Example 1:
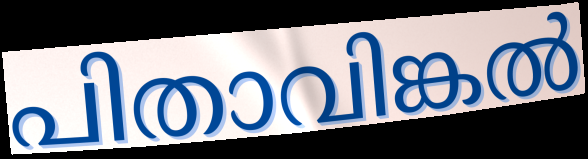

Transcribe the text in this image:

പിതാവിങ്കൽ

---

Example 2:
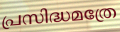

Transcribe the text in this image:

പ്രസിദ്ധമത്രേ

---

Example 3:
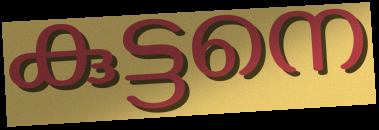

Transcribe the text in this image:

കുട്ടനെ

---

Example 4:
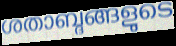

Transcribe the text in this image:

ശതാബ്ദങ്ങളുടെ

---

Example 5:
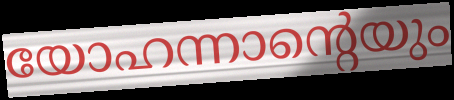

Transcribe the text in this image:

യോഹന്നാന്റെയും